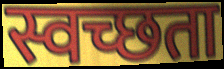
स्वच्छता